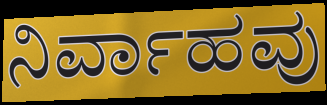
ನಿರ್ವಾಹವು